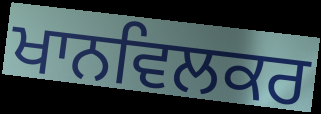
ਖਾਨਵਿਲਕਰ